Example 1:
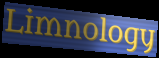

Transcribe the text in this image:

Limnology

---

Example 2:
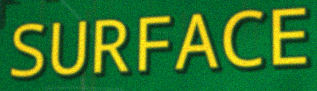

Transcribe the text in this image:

SURFACE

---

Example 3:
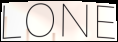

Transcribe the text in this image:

LONE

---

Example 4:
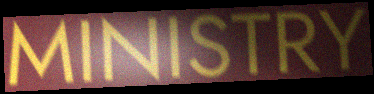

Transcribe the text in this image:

MINISTRY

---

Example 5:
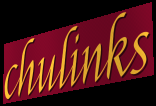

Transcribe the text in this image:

chulinks